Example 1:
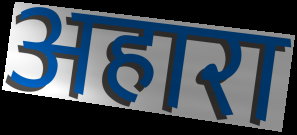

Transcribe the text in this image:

अहारा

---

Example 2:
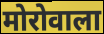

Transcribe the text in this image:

मोरोवाला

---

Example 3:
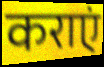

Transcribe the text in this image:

कराएं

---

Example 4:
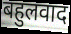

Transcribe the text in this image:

बहुलवाद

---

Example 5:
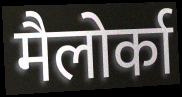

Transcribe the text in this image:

मैलोर्का